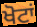
ਖੋਟਾਂ